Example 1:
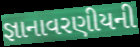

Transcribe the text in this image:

જ્ઞાનાવરણીયની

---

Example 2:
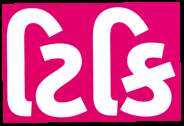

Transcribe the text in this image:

ટિકિ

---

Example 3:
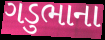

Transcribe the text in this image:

ગડુભાના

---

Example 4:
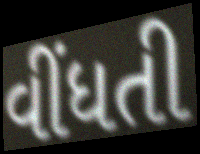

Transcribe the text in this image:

વીંધતી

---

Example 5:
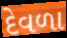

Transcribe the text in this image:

દેવળા